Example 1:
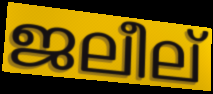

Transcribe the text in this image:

ജലീല്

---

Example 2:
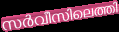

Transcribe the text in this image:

സർവീസിലെത്തി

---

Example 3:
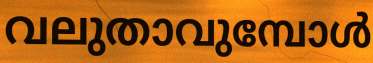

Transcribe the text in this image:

വലുതാവുമ്പോൾ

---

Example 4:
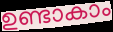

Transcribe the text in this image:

ഉണ്ടാകാം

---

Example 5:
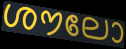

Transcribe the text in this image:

ശൗലോ